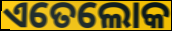
ଏତେଲୋକ